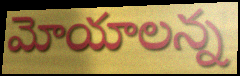
మోయాలన్న